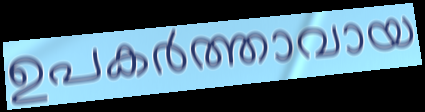
ഉപകർത്താവായ